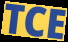
TCE